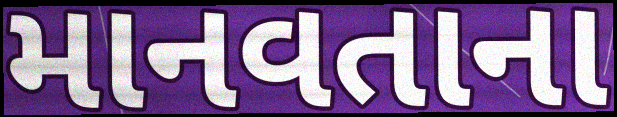
માનવતાના